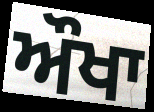
ਔਖਾ